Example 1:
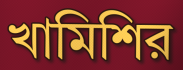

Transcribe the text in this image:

খামিশির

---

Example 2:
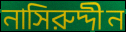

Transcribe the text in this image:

নাসিরুদ্দীন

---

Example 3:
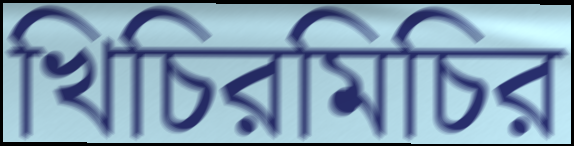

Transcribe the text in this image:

খিচিরমিচির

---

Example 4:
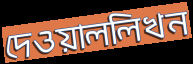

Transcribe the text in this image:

দেওয়াললিখন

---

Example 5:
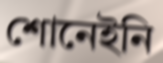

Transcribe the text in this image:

শোনেইনি